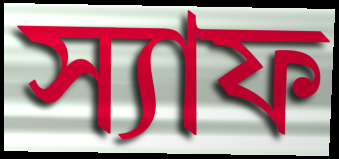
স্যাফ